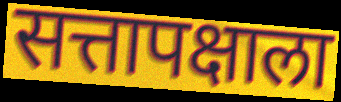
सत्तापक्षाला